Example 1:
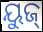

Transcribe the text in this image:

ୟୁଜ୍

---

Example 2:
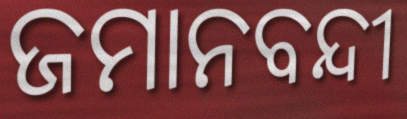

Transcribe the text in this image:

ଜମାନବନ୍ଦୀ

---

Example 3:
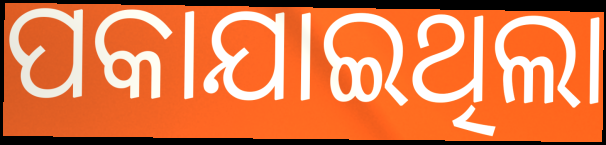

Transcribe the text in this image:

ପକାଯାଇଥିଲା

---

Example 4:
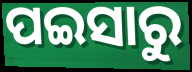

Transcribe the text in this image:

ପଇସାରୁ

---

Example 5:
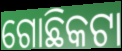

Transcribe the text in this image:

ଗୋଛିକଟା